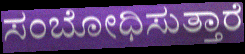
ಸಂಬೋಧಿಸುತ್ತಾರೆ